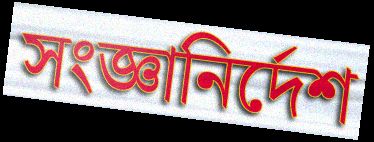
সংজ্ঞানির্দেশ